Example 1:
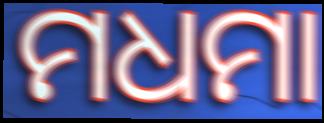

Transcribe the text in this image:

ମଧମା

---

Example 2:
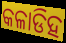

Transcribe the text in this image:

କଳାଡିହ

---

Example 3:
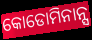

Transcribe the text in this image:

କୋଡୋମିନାନ୍ସ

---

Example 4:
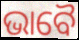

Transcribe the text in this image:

ଭାବୈ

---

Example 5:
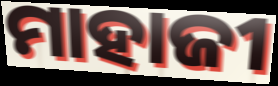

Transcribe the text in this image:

ମାହାଜୀ